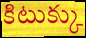
కిటుక్కు